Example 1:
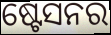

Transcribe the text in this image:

ଷ୍ଟେସନର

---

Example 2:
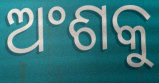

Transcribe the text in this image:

ଅଂଶକୁ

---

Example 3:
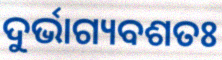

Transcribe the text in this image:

ଦୁର୍ଭାଗ୍ୟବଶତଃ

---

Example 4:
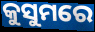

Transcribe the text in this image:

କୁସୁମରେ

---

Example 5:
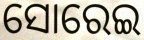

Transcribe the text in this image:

ସୋରେଇ